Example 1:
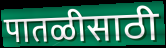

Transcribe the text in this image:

पातळीसाठी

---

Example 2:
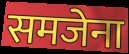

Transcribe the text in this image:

समजेना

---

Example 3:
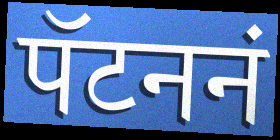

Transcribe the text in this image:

पॅटननं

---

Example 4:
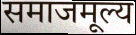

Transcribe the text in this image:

समाजमूल्य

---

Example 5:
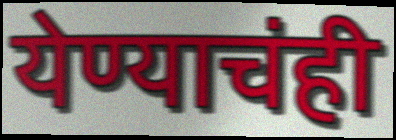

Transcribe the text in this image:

येण्याचंही